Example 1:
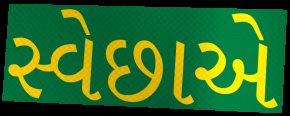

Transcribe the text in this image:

સ્વેછાએ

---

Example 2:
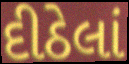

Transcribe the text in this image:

દીઠેલાં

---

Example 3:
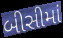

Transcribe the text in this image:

બીસીમાં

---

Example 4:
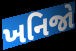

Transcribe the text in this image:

ખનિજો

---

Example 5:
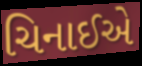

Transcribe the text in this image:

ચિનાઈએ